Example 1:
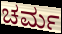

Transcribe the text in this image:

ಚರ್ಮ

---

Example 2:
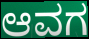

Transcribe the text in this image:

ಆವಗ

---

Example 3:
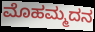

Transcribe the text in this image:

ಮೊಹಮ್ಮದನ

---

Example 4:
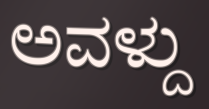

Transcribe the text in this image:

ಅವಳ್ದು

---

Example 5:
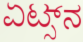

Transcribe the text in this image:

ಏಟ್ಸ್‌ನ